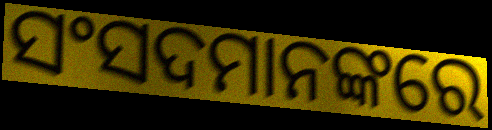
ସଂସଦମାନଙ୍କରେ